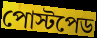
পোস্টপেড